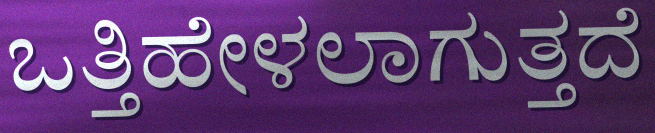
ಒತ್ತಿಹೇಳಲಾಗುತ್ತದೆ